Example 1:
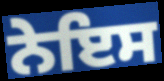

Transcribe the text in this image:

ਨੇਇਸ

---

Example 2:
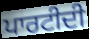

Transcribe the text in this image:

ਪਾਰਟੀਦੀ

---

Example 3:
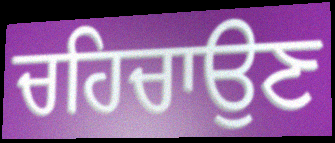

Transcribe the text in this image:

ਚਹਿਚਾਉਣ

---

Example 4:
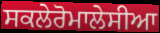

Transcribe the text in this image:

ਸਕਲੇਰੋਮਾਲੇਸੀਆ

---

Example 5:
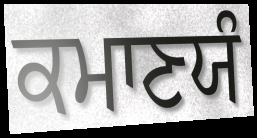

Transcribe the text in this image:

ਕਮਾਣਯੰ